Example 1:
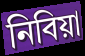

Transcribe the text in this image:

নিবিয়া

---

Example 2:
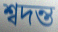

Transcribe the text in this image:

শ্বদন্ত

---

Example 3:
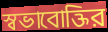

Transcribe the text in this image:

স্বভাবোক্তির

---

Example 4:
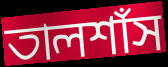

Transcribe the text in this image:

তালশাঁস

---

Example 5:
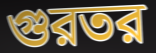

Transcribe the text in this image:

গুরতর